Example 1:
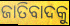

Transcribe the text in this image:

ଜାତିବାଦକୁ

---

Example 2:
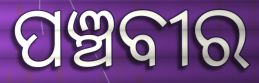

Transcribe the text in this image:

ପଞ୍ଚବୀର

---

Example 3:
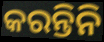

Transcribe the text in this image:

କରନ୍ତିନି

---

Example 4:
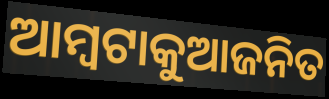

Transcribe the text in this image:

ଆମ୍ବଟାକୁଆଜନିତ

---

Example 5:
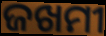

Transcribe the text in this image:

ଜଖମୀ